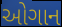
ઓગાન